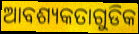
ଆବଶ୍ୟକତାଗୁଡିକ